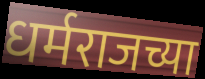
धर्मराजच्या